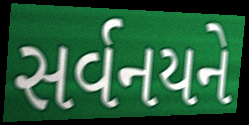
સર્વનયને